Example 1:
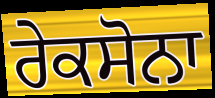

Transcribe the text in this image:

ਰੇਕਸੋਨਾ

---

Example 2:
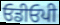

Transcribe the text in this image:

ਓਡੀਓਪੀ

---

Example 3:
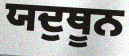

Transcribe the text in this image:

ਯਦੁਥੂਨ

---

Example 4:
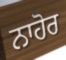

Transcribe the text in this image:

ਨਾਹੋਰ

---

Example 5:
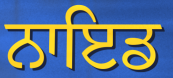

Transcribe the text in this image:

ਨਾਇਡ